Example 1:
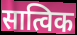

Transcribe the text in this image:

सात्विक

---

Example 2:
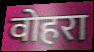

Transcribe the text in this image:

वोहरा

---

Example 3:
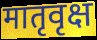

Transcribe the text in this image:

मातृवृक्ष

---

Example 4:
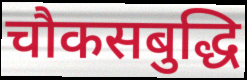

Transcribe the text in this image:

चौकसबुद्धि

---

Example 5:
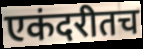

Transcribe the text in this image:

एकंदरीतच